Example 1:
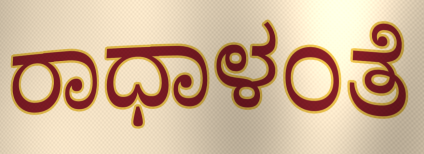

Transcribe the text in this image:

ರಾಧಾಳಂತೆ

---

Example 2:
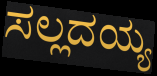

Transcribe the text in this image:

ಸಲ್ಲದಯ್ಯ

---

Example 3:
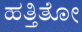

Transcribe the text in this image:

ಹತ್ತಿತೋ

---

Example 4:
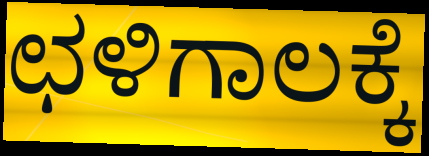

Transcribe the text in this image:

ಛಳಿಗಾಲಕ್ಕೆ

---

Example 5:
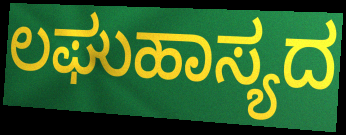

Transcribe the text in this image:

ಲಘುಹಾಸ್ಯದ